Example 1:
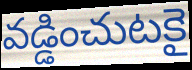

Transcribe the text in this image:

వడ్డించుటకై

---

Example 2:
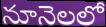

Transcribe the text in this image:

నూనెలలో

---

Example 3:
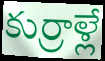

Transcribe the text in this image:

కుర్రాళ్లే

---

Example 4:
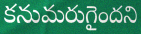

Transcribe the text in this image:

కనుమరుగైందని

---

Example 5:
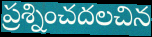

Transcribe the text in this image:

ప్రశ్నించదలచిన